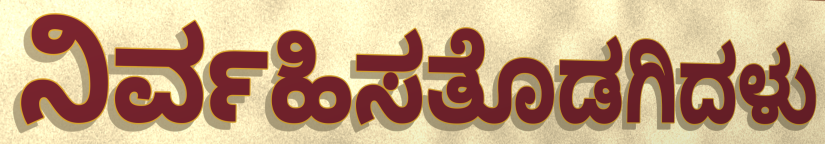
ನಿರ್ವಹಿಸತೊಡಗಿದಳು